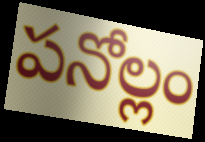
పనోల్లం